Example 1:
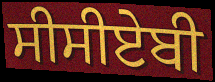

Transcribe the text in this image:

ਸੀਸੀਏਬੀ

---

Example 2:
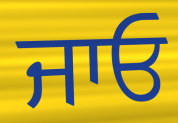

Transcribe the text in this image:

ਜਾਓ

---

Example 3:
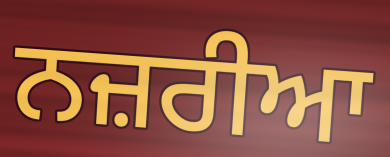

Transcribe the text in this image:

ਨਜ਼ਰੀਆ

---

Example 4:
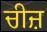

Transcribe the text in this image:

ਚੀਜ਼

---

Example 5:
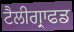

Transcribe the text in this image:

ਟੈਲੀਗ੍ਰਾਫਡ